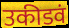
उकीडवं